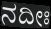
ನದೀಃ